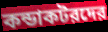
কন্ডাকটরদের